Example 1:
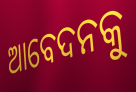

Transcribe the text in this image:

ଆବେଦନକୁ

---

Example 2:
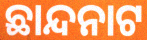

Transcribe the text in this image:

ଛାନ୍ଦନାଟ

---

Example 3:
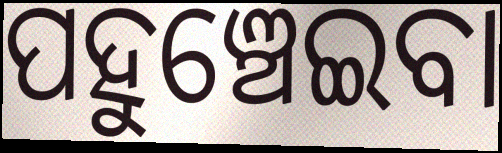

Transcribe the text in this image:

ପହୁଞ୍ଚେଇବା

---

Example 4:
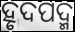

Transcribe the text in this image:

ହୃଦପଦ୍ମ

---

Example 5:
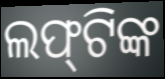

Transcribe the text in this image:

ଲଫ୍‌ଟିଙ୍କ